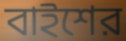
বাইশের